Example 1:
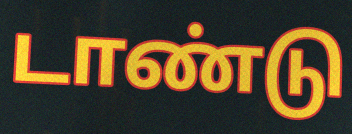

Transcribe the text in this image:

டாண்டு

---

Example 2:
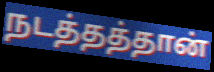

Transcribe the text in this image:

நடத்தத்தான்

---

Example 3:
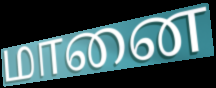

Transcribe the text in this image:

மானை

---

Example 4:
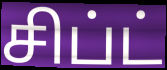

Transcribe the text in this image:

சிப்ட்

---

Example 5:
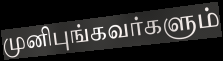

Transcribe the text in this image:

முனிபுங்கவர்களும்